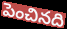
పెంచినది